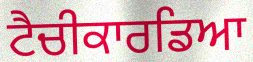
ਟੈਚੀਕਾਰਡਿਆ